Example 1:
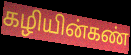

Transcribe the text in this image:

கழியின்கண்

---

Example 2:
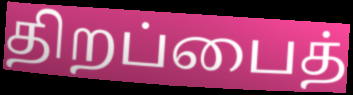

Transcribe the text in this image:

திறப்பைத்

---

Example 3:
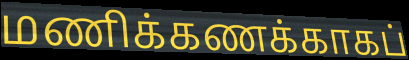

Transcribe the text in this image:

மணிக்கணக்காகப்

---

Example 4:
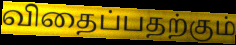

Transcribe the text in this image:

விதைப்பதற்கும்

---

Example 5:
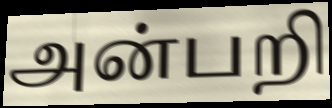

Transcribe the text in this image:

அன்பறி